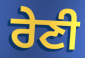
ਰੇਣੀ